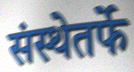
संस्थेतर्फे